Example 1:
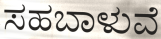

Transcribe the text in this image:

ಸಹಬಾಳುವೆ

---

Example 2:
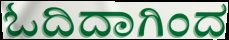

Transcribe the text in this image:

ಓದಿದಾಗಿಂದ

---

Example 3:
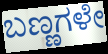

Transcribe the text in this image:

ಬಣ್ಣಗಳೇ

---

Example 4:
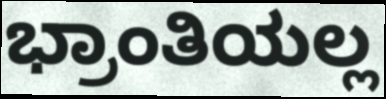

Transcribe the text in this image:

ಭ್ರಾಂತಿಯಲ್ಲ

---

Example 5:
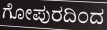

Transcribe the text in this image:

ಗೋಪುರದಿಂದ